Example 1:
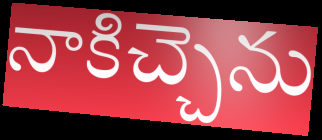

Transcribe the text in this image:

నాకిచ్చెను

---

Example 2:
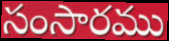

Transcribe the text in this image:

సంసారము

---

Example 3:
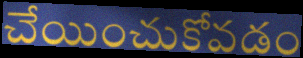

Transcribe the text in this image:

చేయించుకోవడం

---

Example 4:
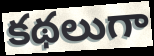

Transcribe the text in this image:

కథలుగా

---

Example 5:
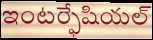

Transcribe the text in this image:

ఇంటర్ఫేషియల్